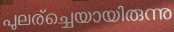
പുലര്ച്ചെയായിരുന്നു